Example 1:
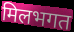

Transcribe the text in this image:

मिलभगत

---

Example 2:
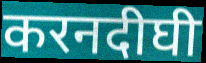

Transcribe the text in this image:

करनदीघी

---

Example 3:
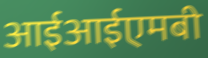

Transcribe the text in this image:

आईआईएमबी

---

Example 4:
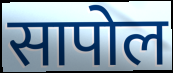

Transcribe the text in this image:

सापोल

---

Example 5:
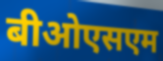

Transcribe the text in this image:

बीओएसएम